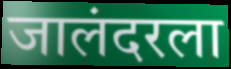
जालंदरला